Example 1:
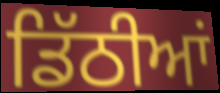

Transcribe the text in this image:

ਡਿੱਠੀਆਂ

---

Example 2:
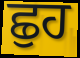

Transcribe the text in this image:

ਛੁਹ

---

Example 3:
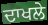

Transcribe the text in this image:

ਦਾਖਲੇ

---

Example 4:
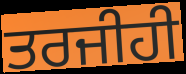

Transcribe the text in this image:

ਤਰਜੀਹੀ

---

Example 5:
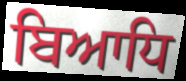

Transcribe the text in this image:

ਬਿਆਧਿ